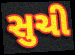
સુચી